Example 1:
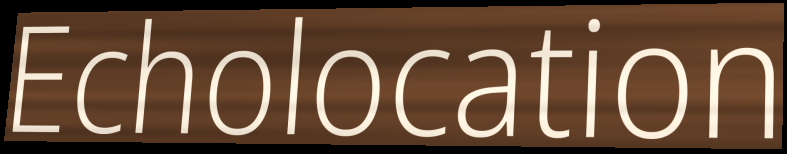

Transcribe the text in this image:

Echolocation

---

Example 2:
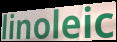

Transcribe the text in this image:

linoleic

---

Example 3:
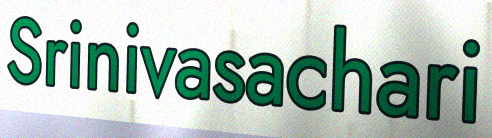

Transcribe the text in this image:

Srinivasachari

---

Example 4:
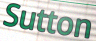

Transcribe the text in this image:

Sutton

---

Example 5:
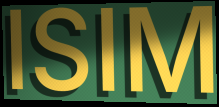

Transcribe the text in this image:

ISIM